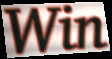
Win